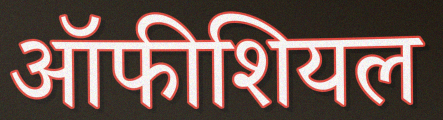
ऑफीशियल